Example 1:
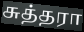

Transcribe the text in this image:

சுத்தரா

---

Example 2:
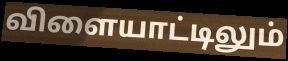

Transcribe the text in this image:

விளையாட்டிலும்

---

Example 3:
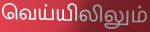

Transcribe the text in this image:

வெய்யிலிலும்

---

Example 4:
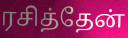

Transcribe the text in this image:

ரசித்தேன்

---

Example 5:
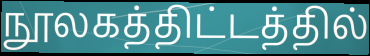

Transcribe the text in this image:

நூலகத்திட்டத்தில்